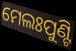
ମେଲଃପୁଣ୍ଟି